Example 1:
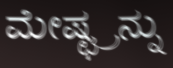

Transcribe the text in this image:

ಮೇಷ್ಟ್ರನ್ನು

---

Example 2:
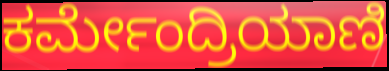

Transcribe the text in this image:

ಕರ್ಮೇಂದ್ರಿಯಾಣಿ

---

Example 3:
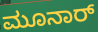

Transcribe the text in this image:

ಮೂನಾರ್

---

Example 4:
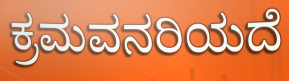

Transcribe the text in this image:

ಕ್ರಮವನರಿಯದೆ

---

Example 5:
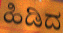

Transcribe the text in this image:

ಹಿಡಿದ